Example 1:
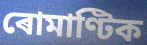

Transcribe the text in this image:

ৰোমাণ্টিক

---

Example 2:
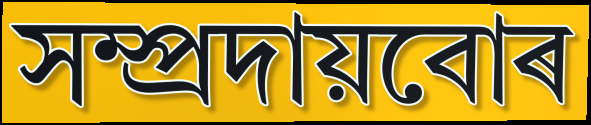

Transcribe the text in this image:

সম্প্ৰদায়বোৰ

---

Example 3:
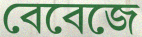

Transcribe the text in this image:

বেবেজে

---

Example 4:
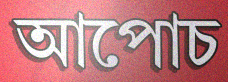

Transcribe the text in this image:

আপোচ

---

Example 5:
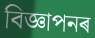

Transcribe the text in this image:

বিজ্ঞাপনৰ